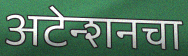
अटेन्शनचा